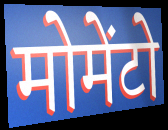
मोमेंटो